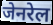
जेनरेल